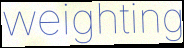
weighting